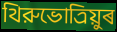
থিৰুভোত্ৰিয়ুৰ